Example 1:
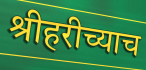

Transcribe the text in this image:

श्रीहरीच्याच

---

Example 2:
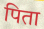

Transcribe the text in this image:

पिता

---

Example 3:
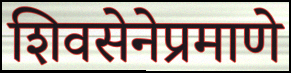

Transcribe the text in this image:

शिवसेनेप्रमाणे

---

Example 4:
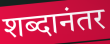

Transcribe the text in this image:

शब्दानंतर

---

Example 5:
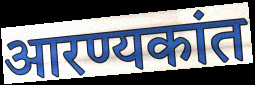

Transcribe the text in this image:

आरण्यकांत